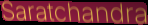
Saratchandra